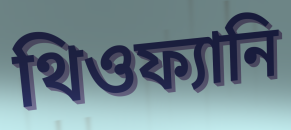
থিওফ্যানি